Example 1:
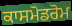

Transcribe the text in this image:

ਕਾਸਮੋਡਰੋਮ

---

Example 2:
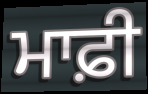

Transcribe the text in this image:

ਮਾਫ਼ੀ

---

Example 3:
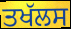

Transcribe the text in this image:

ਤਖੱਲਸ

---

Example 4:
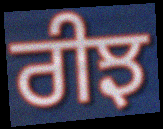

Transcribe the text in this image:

ਰੀਝ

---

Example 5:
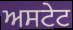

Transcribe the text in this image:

ਅਸਟੇਟ